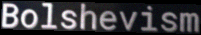
Bolshevism